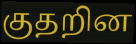
குதறின